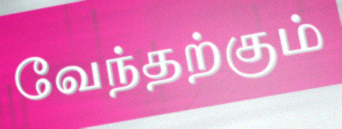
வேந்தற்கும்